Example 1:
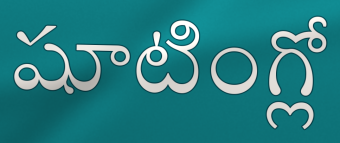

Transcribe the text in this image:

షూటింగ్లో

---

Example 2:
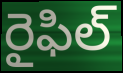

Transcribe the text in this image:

రైఫిల్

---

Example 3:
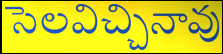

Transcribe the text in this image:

సెలవిచ్చినావు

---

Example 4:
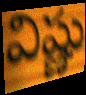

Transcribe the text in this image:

విష్ణు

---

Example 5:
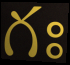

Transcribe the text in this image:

గః